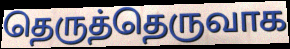
தெருத்தெருவாக